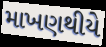
માખણથીયે